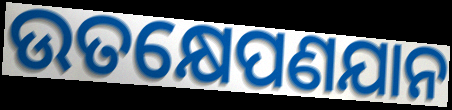
ଉତକ୍ଷେପଣଯାନ